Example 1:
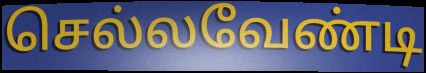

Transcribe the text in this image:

செல்லவேண்டி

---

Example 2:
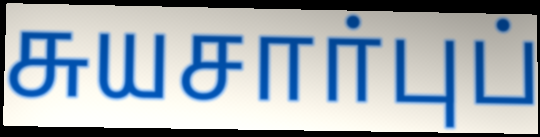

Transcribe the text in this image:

சுயசார்புப்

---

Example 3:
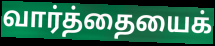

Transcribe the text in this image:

வார்த்தையைக்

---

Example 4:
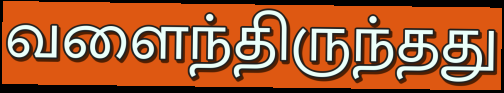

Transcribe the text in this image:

வளைந்திருந்தது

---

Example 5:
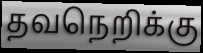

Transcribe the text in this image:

தவநெறிக்கு